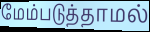
மேம்படுத்தாமல்